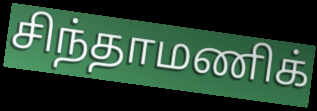
சிந்தாமணிக்